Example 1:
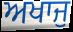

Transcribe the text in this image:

ਅਖਾਜੁ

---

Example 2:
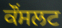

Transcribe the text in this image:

ਕੌਂਸਲਟ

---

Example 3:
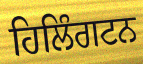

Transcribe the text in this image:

ਹਿਲਿੰਗਟਨ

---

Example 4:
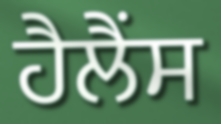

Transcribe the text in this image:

ਹੈਲੈਂਸ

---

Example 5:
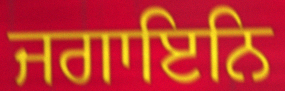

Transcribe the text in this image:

ਜਗਾਇਨਿ